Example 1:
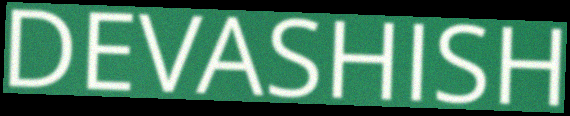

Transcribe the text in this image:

DEVASHISH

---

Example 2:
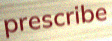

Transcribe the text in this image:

prescribe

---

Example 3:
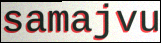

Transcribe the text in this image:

samajvu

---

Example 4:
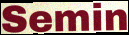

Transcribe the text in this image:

Semin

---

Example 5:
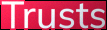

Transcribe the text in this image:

Trusts